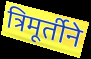
त्रिमूर्तीने